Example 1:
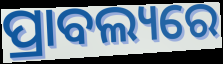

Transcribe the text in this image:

ପ୍ରାବଲ୍ୟରେ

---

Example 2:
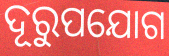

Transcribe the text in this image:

ଦୂରୁପଯୋଗ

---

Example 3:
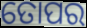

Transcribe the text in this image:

ତୋପର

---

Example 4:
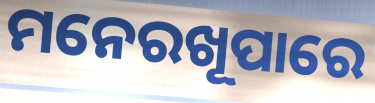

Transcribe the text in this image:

ମନେରଖୂପାରେ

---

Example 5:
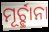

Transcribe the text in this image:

ମୂର୍ଚ୍ଛାନା